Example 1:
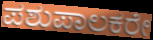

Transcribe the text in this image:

ಪಶುಪಾಲಕರೇ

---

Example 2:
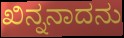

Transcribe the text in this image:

ಖಿನ್ನನಾದನು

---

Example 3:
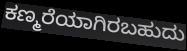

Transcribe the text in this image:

ಕಣ್ಮರೆಯಾಗಿರಬಹುದು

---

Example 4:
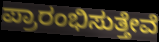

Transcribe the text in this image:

ಪ್ರಾರಂಭಿಸುತ್ತೇವೆ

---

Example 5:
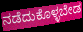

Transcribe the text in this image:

ನಡೆದುಕೊಳ್ಳಬೇಡ